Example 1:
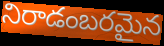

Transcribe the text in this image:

నిరాడంబరమైన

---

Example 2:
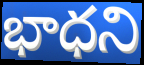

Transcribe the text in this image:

భాధని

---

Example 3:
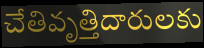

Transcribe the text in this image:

చేతివృత్తిదారులకు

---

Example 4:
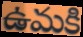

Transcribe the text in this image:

ఉమకి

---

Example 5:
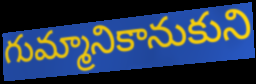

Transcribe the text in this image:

గుమ్మానికానుకుని